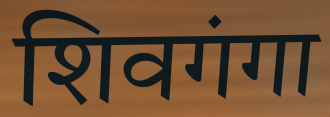
शिवगंगा